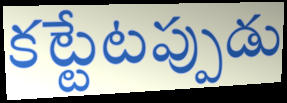
కట్టేటప్పుడు